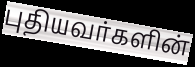
புதியவர்களின்